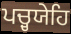
ਪਚ੍ਚਯੇਹਿ